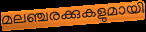
മലഞ്ചരക്കുകളുമായി